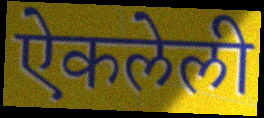
ऐकलेली